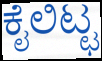
ಕೈಲಿಟ್ಟ